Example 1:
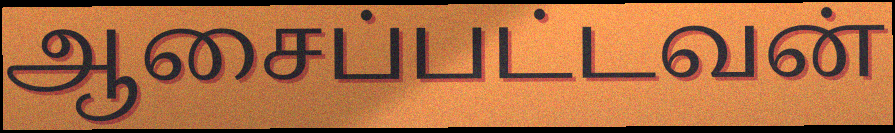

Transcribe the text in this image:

ஆசைப்பட்டவன்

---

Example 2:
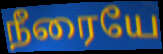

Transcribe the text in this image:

நீரையே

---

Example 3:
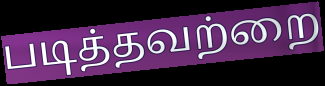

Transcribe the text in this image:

படித்தவற்றை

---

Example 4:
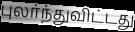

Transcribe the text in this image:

புலர்ந்துவிட்டது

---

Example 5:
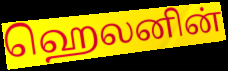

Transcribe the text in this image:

ஹெலனின்